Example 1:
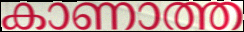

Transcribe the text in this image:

കാണാത്ത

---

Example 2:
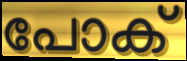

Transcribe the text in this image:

പോക്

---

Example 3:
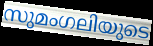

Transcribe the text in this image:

സുമംഗലിയുടെ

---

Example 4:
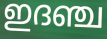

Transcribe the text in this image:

ഇദഞ്ച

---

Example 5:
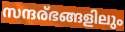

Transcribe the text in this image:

സന്ദര്ഭങ്ങളിലും